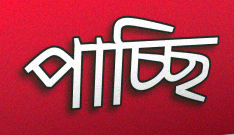
পাচ্ছি